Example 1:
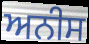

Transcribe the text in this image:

ਅਨੀਸ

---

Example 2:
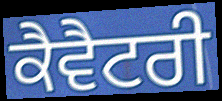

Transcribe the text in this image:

ਕੈਵੈਟਰੀ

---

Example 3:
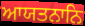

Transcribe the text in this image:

ਆਯਤਨਾਨਿ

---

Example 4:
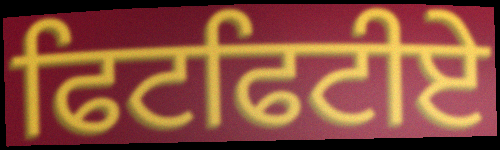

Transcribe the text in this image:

ਫਿਟਫਿਟੀਏ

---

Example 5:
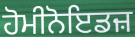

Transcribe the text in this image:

ਹੋਮੀਨੋਇਡਜ਼